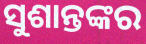
ସୁଶାନ୍ତଙ୍କର